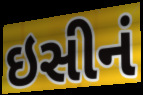
ઇસીનં